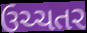
ઉચ્ચતર